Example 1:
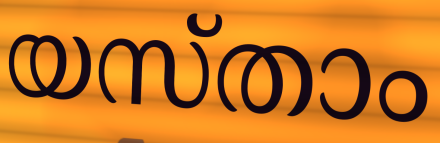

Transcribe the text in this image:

യസ്താം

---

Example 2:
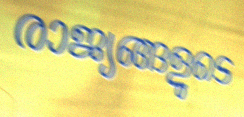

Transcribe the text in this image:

രാജ്യങ്ങളുടെ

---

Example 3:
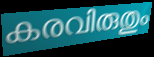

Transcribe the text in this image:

കരവിരുതും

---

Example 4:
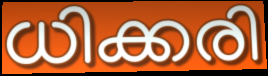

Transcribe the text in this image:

ധിക്കരി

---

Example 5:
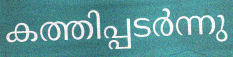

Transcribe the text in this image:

കത്തിപ്പടർന്നു